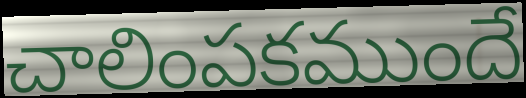
చాలింపకముందే